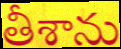
తీశాను